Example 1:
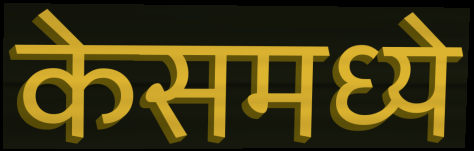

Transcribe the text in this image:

केसमध्ये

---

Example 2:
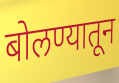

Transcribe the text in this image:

बोलण्यातून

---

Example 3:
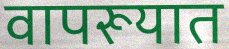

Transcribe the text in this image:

वापरूयात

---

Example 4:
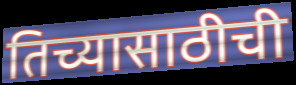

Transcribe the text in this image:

तिच्यासाठीची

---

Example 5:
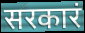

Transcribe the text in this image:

सरकारं